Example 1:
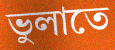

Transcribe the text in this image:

ভুলাতে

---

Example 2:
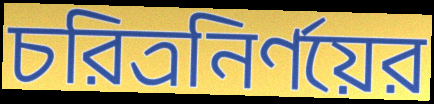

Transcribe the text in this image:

চরিত্রনির্ণয়ের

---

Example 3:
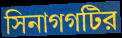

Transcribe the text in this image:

সিনাগগটির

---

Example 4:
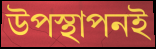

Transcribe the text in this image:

উপস্থাপনই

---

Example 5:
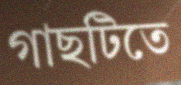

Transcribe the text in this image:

গাছটিতে